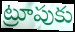
ట్రూపుకు